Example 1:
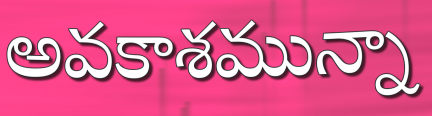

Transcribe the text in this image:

అవకాశమున్నా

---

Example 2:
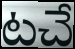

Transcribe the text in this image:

టచే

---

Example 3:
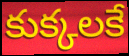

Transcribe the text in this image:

కుక్కలకే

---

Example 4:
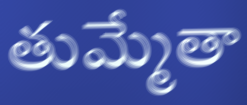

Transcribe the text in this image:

తుమ్మేతా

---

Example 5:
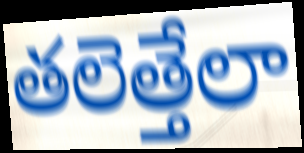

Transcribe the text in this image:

తలెత్తేలా